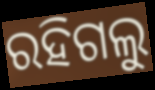
ରହିଗଲୁ